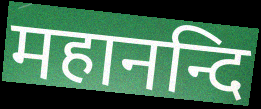
महानन्दि